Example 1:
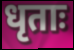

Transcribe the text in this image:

धृताः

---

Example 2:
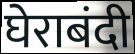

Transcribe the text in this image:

घेराबंदी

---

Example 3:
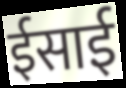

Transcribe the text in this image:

ईसाई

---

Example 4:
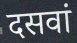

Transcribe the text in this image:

दसवां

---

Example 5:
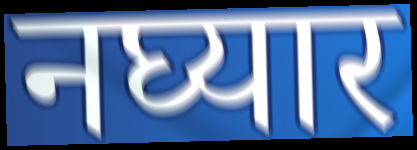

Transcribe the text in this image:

नघ्यार